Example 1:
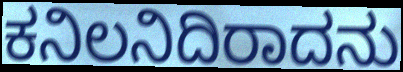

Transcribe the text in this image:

ಕನಿಲನಿದಿರಾದನು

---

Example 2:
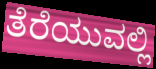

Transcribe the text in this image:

ತೆರೆಯುವಲ್ಲಿ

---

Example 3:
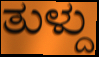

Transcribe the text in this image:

ತುಳ್ದು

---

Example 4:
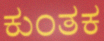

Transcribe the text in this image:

ಕುಂತಕ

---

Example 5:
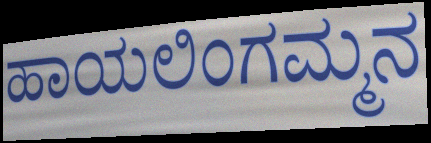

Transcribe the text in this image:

ಹಾಯಲಿಂಗಮ್ಮನ